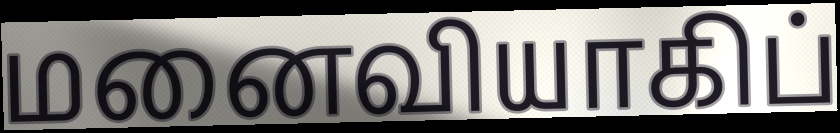
மனைவியாகிப்